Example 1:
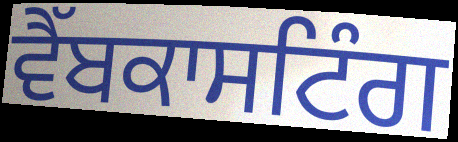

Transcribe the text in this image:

ਵੈੱਬਕਾਸਟਿੰਗ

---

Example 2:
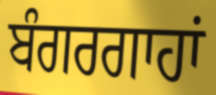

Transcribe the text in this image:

ਬੰਗਰਗਾਹਾਂ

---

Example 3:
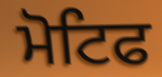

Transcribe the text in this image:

ਮੋਟਿਫ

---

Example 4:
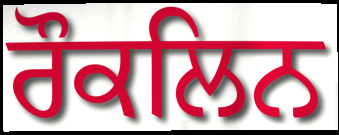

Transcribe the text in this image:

ਰੌਕਲਿਨ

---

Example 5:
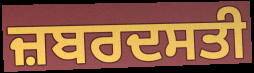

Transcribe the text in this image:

ਜ਼ਬਰਦਸਤੀ